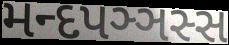
મન્દપઞ્ઞસ્સ